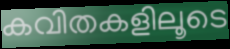
കവിതകളിലൂടെ